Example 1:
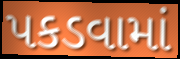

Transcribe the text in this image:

પકડવામાં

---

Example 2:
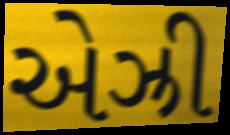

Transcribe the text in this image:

એઝ્રી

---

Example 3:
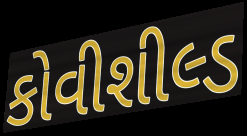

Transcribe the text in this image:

કોવીશીલ્ડ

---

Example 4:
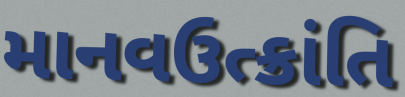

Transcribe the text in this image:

માનવઉત્ક્રાંતિ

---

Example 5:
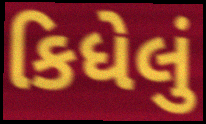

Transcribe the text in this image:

કિધેલું